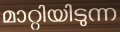
മാറ്റിയിടുന്ന